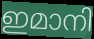
ഇമാനി